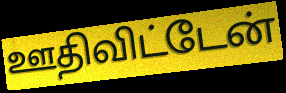
ஊதிவிட்டேன்